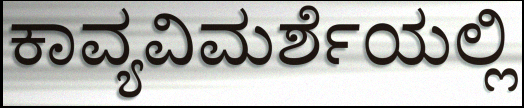
ಕಾವ್ಯವಿಮರ್ಶೆಯಲ್ಲಿ